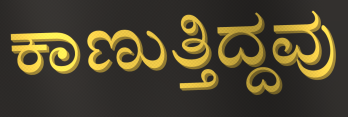
ಕಾಣುತ್ತಿದ್ದವು